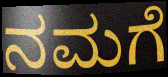
ನಮಗೆ